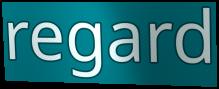
regard